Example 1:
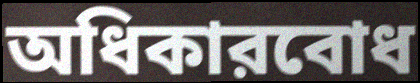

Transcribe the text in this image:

অধিকারবোধ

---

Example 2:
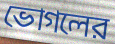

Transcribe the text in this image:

ভোগলের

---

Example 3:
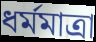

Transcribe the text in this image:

ধর্মমাত্রা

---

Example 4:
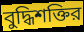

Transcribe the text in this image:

বুদ্ধিশক্তির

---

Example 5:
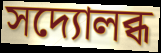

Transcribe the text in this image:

সদ্যোলব্ধ